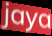
jaya